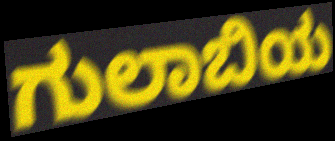
ಗುಲಾಬಿಯ